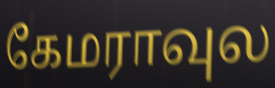
கேமராவுல